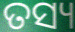
ତସ୍ୟ